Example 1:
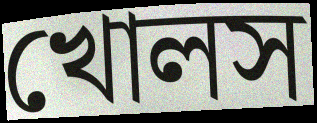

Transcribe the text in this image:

খোলস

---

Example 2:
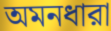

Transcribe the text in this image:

অমনধারা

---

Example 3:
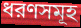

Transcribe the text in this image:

ধরণসমূহ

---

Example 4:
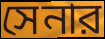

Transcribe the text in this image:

সেনার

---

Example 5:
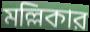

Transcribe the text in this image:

মল্লিকার